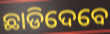
ଛାଡିଦେବେ